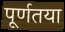
पूर्णतया